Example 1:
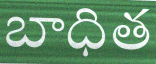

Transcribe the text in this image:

బాధిత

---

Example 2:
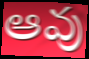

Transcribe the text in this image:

ఆవు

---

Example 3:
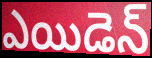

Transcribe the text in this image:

ఎయిడెన్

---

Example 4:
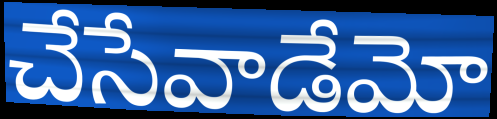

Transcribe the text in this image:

చేసేవాడేమో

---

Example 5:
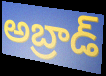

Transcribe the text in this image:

అబ్రాడ్